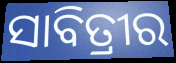
ସାବିତ୍ରୀର